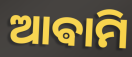
ଆଵାମି